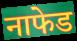
नाफेड